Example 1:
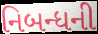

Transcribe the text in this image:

નિબન્ધની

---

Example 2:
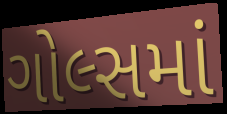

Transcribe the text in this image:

ગોલ્સમાં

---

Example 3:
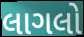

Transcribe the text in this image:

લાગલો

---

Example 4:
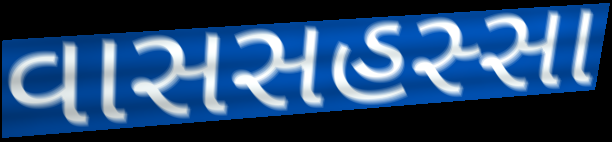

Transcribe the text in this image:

વાસસહસ્સા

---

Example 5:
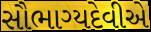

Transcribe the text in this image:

સૌભાગ્યદેવીએ